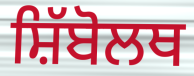
ਸ਼ਿੱਬੋਲਥ